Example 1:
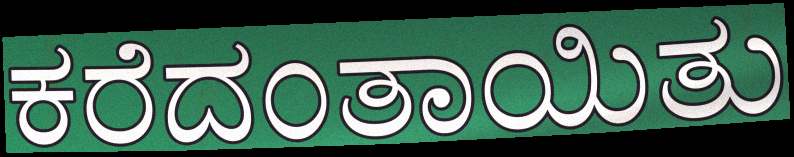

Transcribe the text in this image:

ಕರೆದಂತಾಯಿತು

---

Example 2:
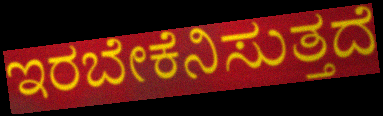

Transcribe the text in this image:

ಇರಬೇಕೆನಿಸುತ್ತದೆ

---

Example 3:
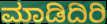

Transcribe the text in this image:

ಮಾಡಿದಿರಿ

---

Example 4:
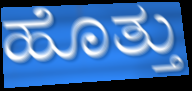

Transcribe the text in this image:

ಹೊತ್ತು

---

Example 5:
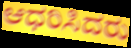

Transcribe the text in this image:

ಆಧರಿಸಿದರು